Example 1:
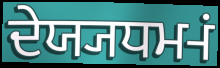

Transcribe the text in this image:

ਦੇਯ੍ਯਧਮ੍ਮਂ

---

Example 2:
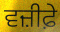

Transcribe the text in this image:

ਵਜ਼ੀਫ਼ੇ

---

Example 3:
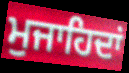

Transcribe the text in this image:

ਮੁਜਾਹਿਦਾਂ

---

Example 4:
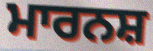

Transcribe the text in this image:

ਮਾਰਨਸ਼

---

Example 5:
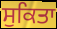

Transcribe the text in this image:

ਸੁਕਿਤਾ